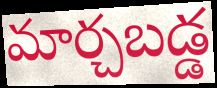
మార్చబడ్డ